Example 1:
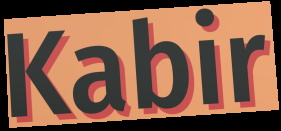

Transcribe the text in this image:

Kabir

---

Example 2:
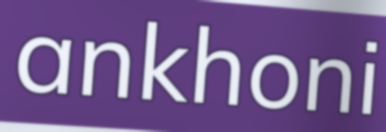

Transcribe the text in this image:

ankhoni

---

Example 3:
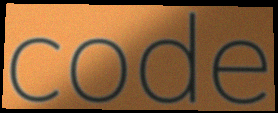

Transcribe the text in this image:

code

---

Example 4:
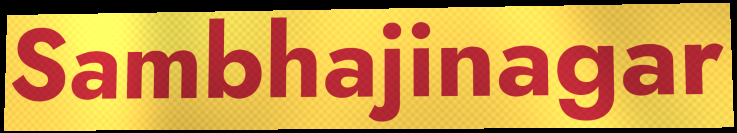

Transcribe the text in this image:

Sambhajinagar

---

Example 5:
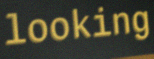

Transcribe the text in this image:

looking